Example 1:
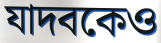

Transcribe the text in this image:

যাদবকেও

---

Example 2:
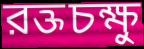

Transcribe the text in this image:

রক্তচক্ষু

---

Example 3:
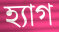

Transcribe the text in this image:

হ্যাগ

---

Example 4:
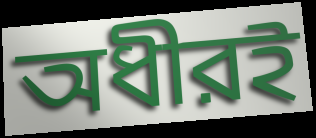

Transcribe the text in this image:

অধীরই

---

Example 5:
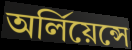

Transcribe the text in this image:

অর্লিয়েন্সে